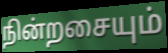
நின்றசையும்